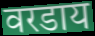
वरडाय